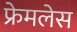
फ्रेमलेस